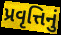
પ્રવૃત્તિનું